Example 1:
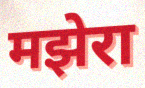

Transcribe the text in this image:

मझेरा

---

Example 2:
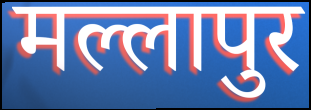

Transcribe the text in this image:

मल्लापुर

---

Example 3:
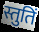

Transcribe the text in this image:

स्तुतिं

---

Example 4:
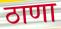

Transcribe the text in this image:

ठाणा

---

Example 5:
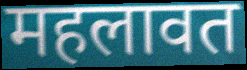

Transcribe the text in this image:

महलावत